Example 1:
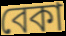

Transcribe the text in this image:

বেকা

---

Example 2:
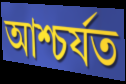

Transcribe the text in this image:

আশ্চৰ্যত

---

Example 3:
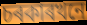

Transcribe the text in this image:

চৰকাৰখনে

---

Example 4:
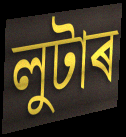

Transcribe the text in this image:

লুটাৰ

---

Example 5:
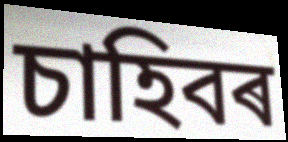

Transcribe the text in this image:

চাহিবৰ